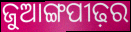
ଜୁଆଙ୍ଗପୀଢ଼ର